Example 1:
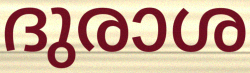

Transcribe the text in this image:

ദുരാശ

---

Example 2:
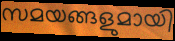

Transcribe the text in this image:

സമയങ്ങളുമായി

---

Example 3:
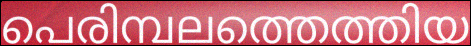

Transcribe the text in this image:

പെരിമ്പലത്തെത്തിയ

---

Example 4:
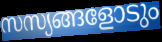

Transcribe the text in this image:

സസ്യങ്ങളോടും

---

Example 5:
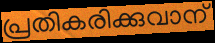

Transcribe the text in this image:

പ്രതികരിക്കുവാന്